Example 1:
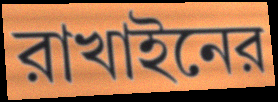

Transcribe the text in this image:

রাখাইনের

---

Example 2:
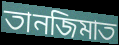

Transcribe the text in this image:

তানজিমাত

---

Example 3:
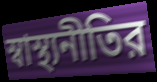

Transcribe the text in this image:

স্বাস্থ্যনীতির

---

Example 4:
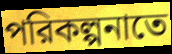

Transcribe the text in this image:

পরিকল্পনাতে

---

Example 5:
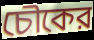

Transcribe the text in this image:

চৌকের